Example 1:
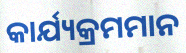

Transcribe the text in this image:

କାର୍ଯ୍ୟକ୍ରମମାନ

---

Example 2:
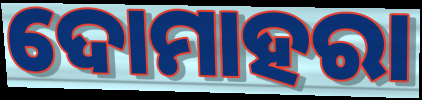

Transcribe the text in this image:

ଦୋମାହରା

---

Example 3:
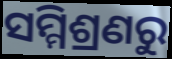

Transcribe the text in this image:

ସମ୍ମିଶ୍ରଣରୁ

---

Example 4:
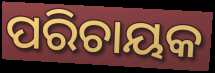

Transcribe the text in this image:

ପରିଚାୟକ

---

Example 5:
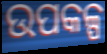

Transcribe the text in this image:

ଉପକଳ୍ପ